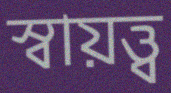
স্বায়ত্ত্ব